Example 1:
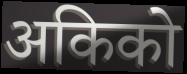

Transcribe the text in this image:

अकिको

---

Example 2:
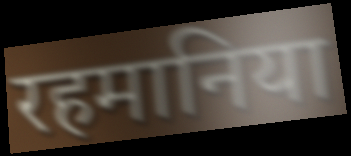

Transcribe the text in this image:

रहमानिया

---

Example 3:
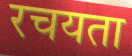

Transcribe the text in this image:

रचयता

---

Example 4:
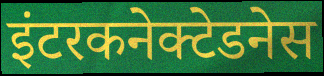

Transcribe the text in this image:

इंटरकनेक्टेडनेस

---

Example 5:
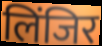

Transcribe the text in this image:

लिंजिर